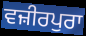
ਵਜ਼ੀਰਪੁਰਾ